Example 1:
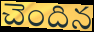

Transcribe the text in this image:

చెందిన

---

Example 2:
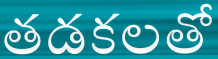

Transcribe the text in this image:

తడకలతో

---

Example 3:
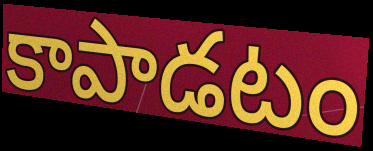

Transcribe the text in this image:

కాపాడటం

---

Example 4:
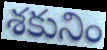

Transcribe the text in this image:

శకునిం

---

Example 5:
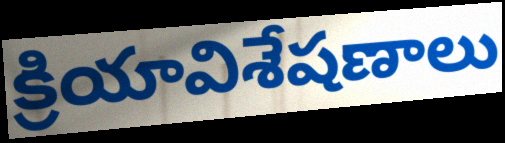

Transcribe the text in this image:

క్రియావిశేషణాలు